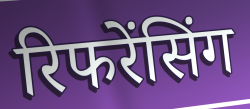
रिफरेंसिंग